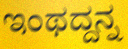
ಇಂಥದ್ದನ್ನ